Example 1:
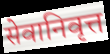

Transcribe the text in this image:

सेवानिवृत्त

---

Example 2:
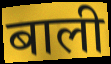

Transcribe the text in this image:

बाली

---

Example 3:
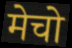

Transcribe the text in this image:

मेचो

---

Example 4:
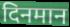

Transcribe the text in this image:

दिनमान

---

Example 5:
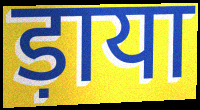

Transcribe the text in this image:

ड़ाया